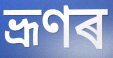
ভ্ৰূণৰ